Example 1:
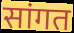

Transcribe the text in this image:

सांगत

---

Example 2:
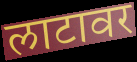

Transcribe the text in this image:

लाटावर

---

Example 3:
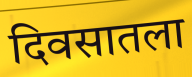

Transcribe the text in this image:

दिवसातला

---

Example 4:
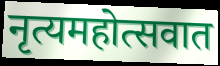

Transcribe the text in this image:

नृत्यमहोत्सवात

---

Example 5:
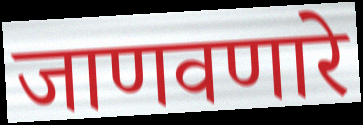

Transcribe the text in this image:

जाणवणारे